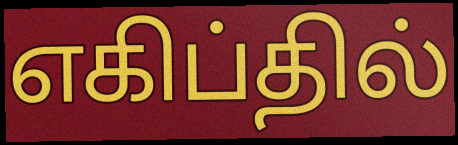
எகிப்தில்